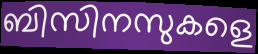
ബിസിനസുകളെ